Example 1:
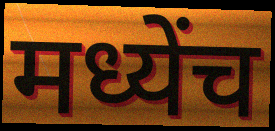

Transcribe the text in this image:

मध्येंच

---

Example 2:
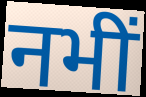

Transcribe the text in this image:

नभीं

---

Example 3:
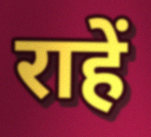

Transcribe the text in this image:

राहें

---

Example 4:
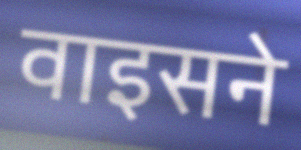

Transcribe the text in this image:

वाइसने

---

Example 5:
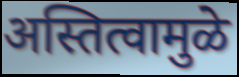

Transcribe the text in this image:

अस्तित्वामुळे